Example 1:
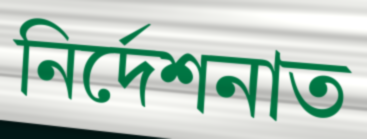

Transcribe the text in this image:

নিৰ্দেশনাত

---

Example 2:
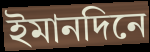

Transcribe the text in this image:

ইমানদিনে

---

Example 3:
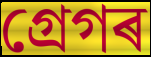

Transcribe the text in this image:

গ্ৰেগৰ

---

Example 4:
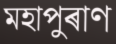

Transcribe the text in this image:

মহাপুৰাণ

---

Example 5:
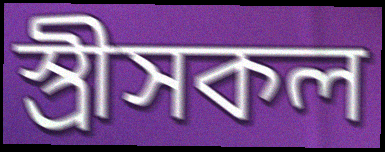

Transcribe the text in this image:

স্ত্ৰীসকল